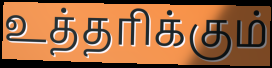
உத்தரிக்கும்